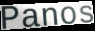
Panos